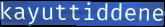
kayuttiddene